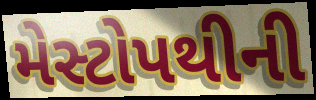
મેસ્ટોપથીની